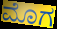
ಮೊಗ